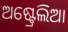
ଅଷ୍ଟ୍ରେଲିଆ